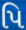
પિ